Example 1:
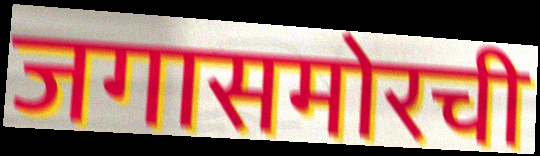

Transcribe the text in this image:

जगासमोरची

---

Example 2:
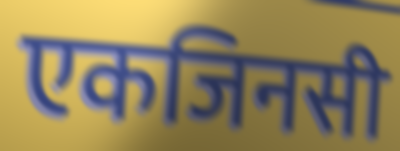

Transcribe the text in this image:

एकजिनसी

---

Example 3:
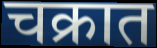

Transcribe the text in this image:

चक्रात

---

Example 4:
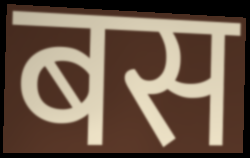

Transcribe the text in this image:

बस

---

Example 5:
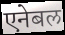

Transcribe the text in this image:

एनेबल